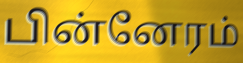
பின்னேரம்